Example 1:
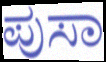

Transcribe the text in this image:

ಪುಸಾ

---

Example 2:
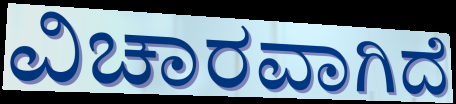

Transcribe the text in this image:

ವಿಚಾರವಾಗಿದೆ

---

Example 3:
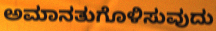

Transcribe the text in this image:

ಅಮಾನತುಗೊಳಿಸುವುದು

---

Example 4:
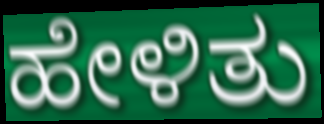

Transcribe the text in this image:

ಹೇಳಿತು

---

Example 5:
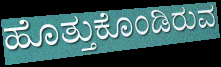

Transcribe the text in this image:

ಹೊತ್ತುಕೊಂಡಿರುವ